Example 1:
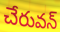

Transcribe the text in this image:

చేరువన్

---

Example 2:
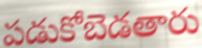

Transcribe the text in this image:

పడుకోబెడతారు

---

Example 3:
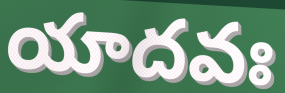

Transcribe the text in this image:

యాదవః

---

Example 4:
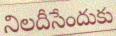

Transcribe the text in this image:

నిలదీసేందుకు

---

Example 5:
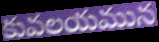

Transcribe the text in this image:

కువలయమున